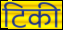
टिकी